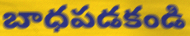
బాధపడకండి